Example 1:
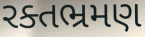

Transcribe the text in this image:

રક્તભ્રમણ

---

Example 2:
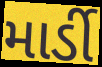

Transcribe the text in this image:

માર્ડી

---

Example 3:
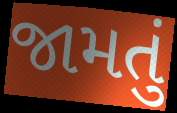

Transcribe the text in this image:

જામતું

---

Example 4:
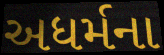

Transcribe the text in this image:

અધર્મના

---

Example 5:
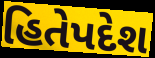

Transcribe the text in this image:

હિતેપદેશ